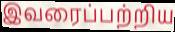
இவரைப்பற்றிய